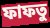
ফাফতু